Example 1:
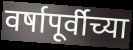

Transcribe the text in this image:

वर्षापूर्वीच्या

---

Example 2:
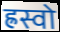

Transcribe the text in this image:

ह्रस्वो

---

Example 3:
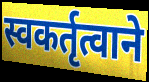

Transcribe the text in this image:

स्वकर्तृत्वाने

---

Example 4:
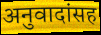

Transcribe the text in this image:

अनुवादांसह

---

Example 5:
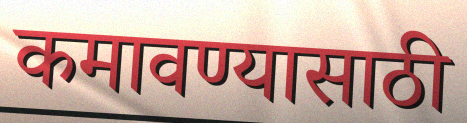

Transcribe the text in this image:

कमावण्यासाठी